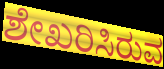
ಶೇಖರಿಸಿರುವ